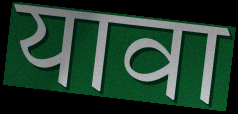
यावा